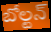
బోల్టన్